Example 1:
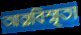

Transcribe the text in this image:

আত্মবিস্মৃতা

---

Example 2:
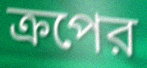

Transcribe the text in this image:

ক্রপের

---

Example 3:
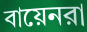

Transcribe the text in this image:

বায়েনরা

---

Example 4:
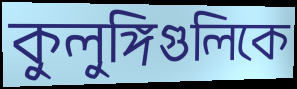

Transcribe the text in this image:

কুলুঙ্গিগুলিকে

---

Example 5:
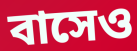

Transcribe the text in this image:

বাসেও